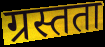
ग्रस्तता